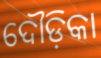
ଦୌଡ଼ିକା